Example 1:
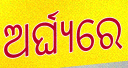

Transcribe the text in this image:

ଅର୍ଘ୍ୟରେ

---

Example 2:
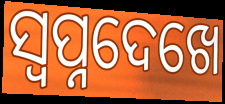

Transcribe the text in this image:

ସ୍ୱପ୍ନଦେଖେ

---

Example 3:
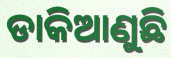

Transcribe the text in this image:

ଡାକିଆଣୁଛି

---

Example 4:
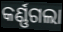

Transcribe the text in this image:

କର୍ଣ୍ଣଗଲା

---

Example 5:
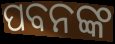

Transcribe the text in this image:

ପବନଙ୍କ